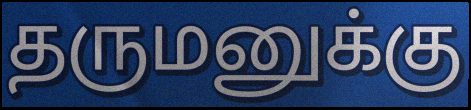
தருமனுக்கு